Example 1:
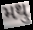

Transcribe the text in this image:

મથુ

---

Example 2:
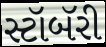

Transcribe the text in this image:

સ્ટૉબૅરી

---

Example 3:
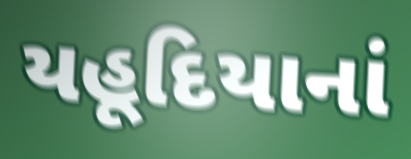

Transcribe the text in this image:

યહૂદિયાનાં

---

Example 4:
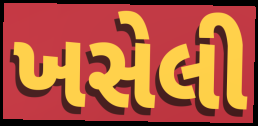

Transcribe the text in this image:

ખસેલી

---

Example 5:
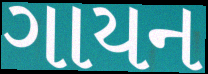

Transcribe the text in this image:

ગાયન